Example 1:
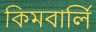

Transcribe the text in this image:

কিমবার্লি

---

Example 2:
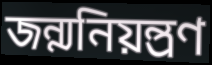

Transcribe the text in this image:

জন্মনিয়ন্ত্রণ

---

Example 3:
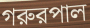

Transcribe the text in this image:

গরুরপাল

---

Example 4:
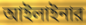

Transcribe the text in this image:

আইলাইনার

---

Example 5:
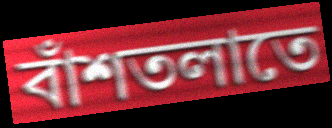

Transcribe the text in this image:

বাঁশতলাতে